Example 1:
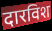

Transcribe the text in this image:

दारविश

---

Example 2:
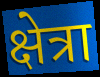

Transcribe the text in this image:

क्षेत्रा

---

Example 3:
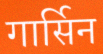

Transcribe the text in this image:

गार्सिन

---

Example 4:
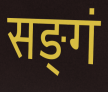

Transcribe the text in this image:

सङ्गं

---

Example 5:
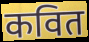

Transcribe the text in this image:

कवित